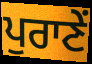
ਪੁਰਾਣੇਂ